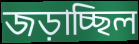
জড়াচ্ছিল